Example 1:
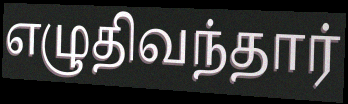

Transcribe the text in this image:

எழுதிவந்தார்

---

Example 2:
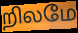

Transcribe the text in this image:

றிலமே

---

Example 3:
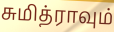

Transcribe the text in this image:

சுமித்ராவும்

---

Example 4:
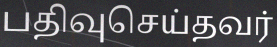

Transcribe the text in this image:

பதிவுசெய்தவர்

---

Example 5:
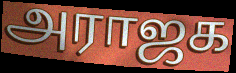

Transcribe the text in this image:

அராஜக